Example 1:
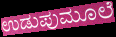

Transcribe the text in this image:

ಉಡುಪುಮೂಲೆ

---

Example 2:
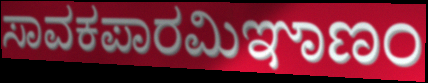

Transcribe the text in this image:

ಸಾವಕಪಾರಮಿಞಾಣಂ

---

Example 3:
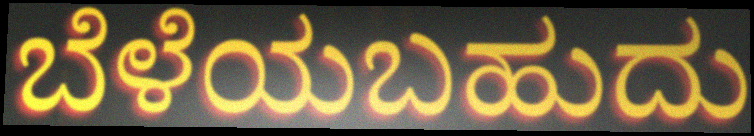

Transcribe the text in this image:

ಬೆಳೆಯಬಹುದು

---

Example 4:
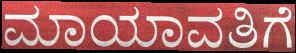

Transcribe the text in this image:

ಮಾಯಾವತಿಗೆ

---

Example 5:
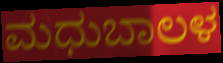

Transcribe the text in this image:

ಮಧುಬಾಲಳ